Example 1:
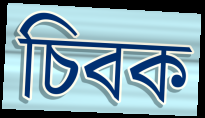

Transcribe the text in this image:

চিবক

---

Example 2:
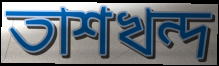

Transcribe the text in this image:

তাশখন্দ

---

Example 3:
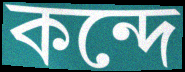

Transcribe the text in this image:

কন্দে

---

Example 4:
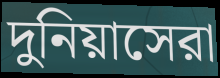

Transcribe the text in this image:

দুনিয়াসেরা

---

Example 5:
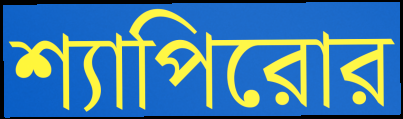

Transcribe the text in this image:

শ্যাপিরোর